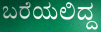
ಬರೆಯಲಿದ್ದ